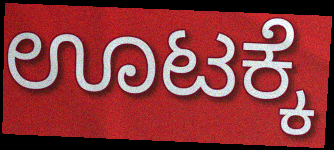
ಊಟಕ್ಕೆ